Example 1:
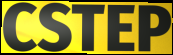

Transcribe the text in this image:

CSTEP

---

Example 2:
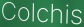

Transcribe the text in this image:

Colchis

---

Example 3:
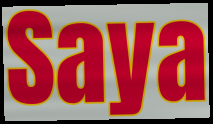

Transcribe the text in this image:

Saya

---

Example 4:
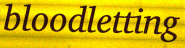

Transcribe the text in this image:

bloodletting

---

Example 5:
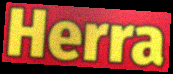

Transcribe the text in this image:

Herra